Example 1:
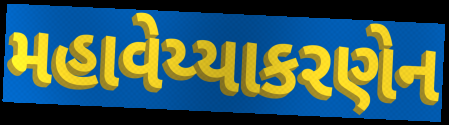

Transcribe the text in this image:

મહાવેય્યાકરણેન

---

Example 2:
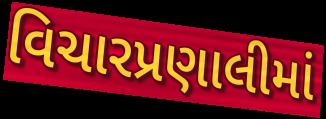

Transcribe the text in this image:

વિચારપ્રણાલીમાં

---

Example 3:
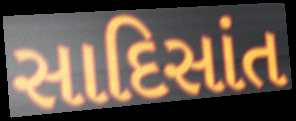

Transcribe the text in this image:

સાદિસાંત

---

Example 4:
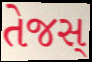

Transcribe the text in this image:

તેજસ્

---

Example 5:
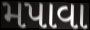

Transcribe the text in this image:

મપાવા